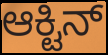
ಆಕ್ಟಿನ್